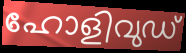
ഹോളിവുഡ്